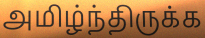
அமிழ்ந்திருக்க